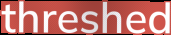
threshed